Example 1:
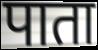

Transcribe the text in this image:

पाता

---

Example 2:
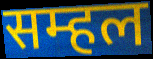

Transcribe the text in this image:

सम्हल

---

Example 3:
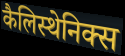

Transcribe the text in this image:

कैलिस्थेनिक्स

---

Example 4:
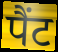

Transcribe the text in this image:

पैंट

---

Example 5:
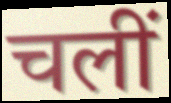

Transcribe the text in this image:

चलीं